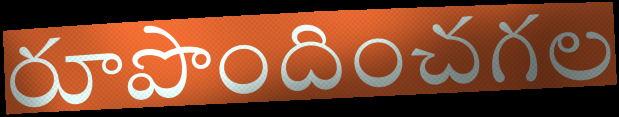
రూపొందించగల